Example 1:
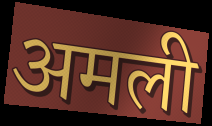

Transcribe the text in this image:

अमली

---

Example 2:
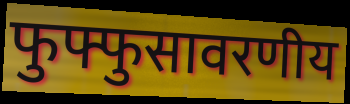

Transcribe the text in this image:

फुफ्फुसावरणीय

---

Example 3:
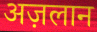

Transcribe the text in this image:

अज़लान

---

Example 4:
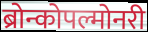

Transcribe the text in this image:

ब्रोन्कोपल्मोनरी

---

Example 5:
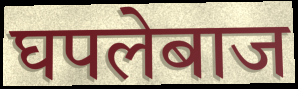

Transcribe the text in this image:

घपलेबाज